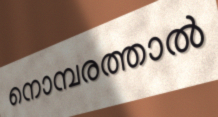
നൊമ്പരത്താൽ